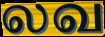
லவ